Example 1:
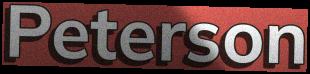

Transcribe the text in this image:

Peterson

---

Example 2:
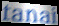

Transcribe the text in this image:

tanai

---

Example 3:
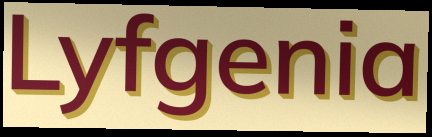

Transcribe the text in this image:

Lyfgenia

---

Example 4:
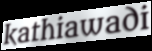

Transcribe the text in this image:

kathiawadi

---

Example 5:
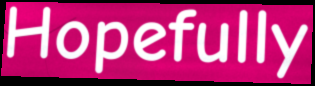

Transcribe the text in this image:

Hopefully